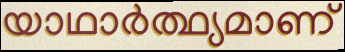
യാഥാർത്ഥ്യമാണ്